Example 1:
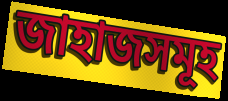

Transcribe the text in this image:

জাহাজসমূহ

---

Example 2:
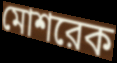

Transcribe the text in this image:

মোশরেক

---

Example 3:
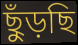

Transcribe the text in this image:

ছুঁড়ছি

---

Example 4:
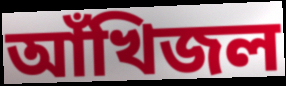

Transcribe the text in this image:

আঁখিজল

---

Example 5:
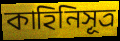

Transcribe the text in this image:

কাহিনিসূত্র